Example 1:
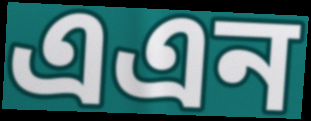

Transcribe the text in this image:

এএন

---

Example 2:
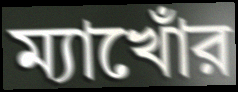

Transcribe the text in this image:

ম্যাখোঁর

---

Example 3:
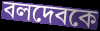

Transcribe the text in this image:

বলদেবকে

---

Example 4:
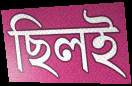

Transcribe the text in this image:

ছিলই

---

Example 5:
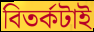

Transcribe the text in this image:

বিতর্কটাই